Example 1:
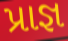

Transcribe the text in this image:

પ્રાજ્ઞ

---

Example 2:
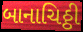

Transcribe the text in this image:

બાનાચિઠ્ઠી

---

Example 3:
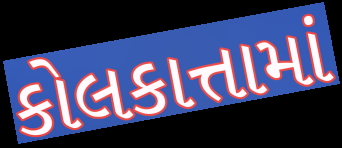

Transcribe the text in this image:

કોલકાત્તામાં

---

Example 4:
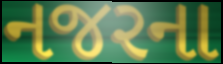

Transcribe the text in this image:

નજરના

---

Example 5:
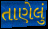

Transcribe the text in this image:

તાણેલું